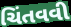
ચિંતવવી